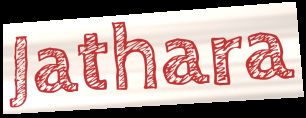
Jathara